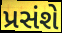
પ્રસંશે